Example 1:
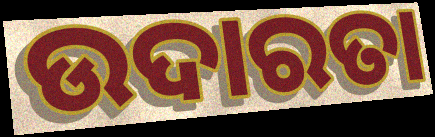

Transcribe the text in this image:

ଉଦାରତା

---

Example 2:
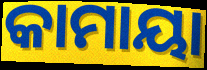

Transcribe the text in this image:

କାମାୟା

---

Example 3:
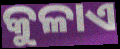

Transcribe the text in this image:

କୁଳାଏ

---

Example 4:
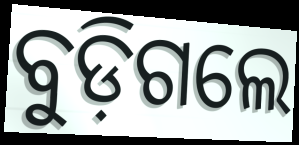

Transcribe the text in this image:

ବୁଡ଼ିଗଲେ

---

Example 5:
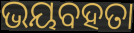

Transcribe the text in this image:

ଭୟବହତା